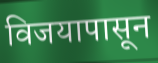
विजयापासून